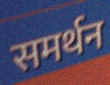
समर्थन